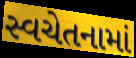
સ્વચેતનામાં